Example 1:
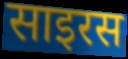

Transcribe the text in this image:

साइरस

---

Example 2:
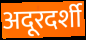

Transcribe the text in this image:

अदूरदर्शी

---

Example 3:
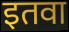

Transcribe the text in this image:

इतवा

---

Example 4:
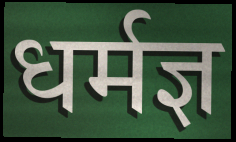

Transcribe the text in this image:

धर्मज्ञ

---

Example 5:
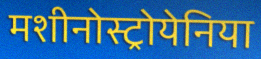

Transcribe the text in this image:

मशीनोस्ट्रोयेनिया